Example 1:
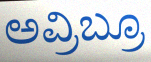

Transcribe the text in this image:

ಅವ್ರಿಬ್ರೂ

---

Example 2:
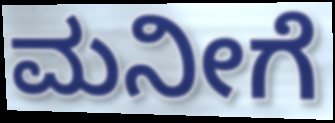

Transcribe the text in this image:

ಮನೀಗೆ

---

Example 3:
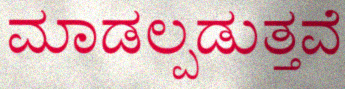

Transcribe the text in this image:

ಮಾಡಲ್ಪಡುತ್ತವೆ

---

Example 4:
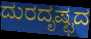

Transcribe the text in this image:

ದುರದೃಷ್ಟದ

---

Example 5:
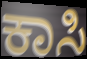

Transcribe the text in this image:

ಕಾಸಿ